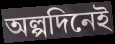
অল্পদিনেই